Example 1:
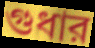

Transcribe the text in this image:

গুধার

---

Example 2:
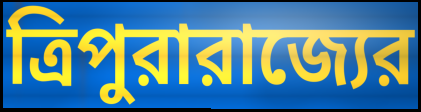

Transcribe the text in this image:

ত্রিপুরারাজ্যের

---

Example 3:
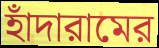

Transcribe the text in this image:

হাঁদারামের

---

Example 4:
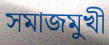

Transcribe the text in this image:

সমাজমুখী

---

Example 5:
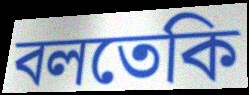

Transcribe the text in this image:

বলতেকি